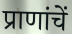
प्राणांचें